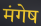
मंगेष